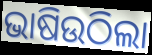
ଭାଷିଉଠିଲା